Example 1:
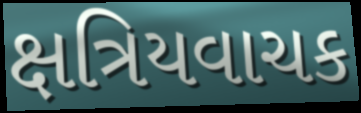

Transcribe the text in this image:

ક્ષત્રિયવાચક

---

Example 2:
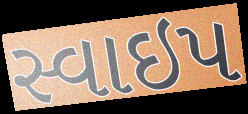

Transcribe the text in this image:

સ્વાઇપ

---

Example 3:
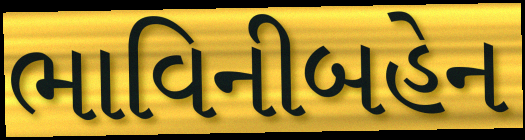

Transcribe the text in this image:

ભાવિનીબહેન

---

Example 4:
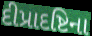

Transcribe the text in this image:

દીપ્રાદષ્ટિના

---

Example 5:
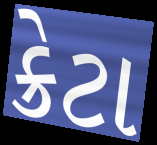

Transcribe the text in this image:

ક્રેટા